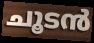
ചൂടൻ